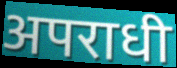
अपराधी